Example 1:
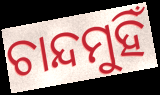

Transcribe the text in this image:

ଚାନ୍ଦମୁହିଁ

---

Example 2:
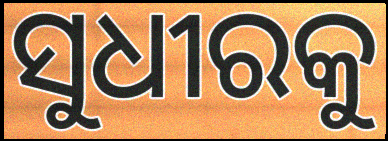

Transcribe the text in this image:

ସୁଧୀରକୁ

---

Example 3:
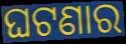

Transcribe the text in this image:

ଘଟଣାର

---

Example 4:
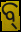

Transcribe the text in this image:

ବ୍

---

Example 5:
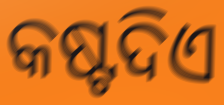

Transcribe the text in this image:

କଷ୍ଟଦିଏ